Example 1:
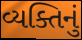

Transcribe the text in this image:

વ્યક્તિનું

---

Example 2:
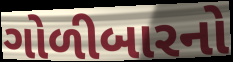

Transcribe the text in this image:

ગોળીબારનો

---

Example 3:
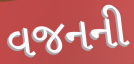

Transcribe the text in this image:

વજનની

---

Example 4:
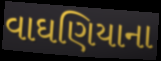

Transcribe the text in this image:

વાઘણિયાના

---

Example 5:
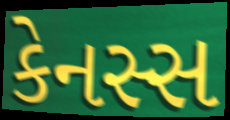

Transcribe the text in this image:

કેનસ્સ